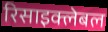
रिसाइक्लेबल